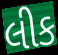
લીક